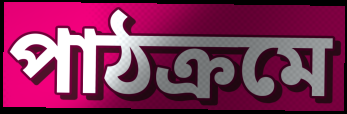
পাঠক্রমে